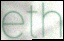
eth